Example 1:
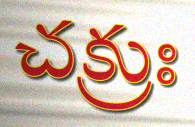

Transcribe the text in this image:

చక్రుః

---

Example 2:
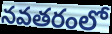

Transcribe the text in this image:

నవతరంలో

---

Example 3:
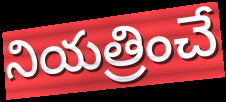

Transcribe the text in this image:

నియత్రించే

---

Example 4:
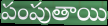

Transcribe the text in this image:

పంపుతాయి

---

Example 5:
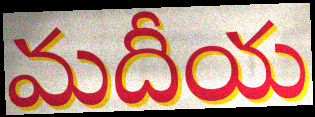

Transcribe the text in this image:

మదీయ